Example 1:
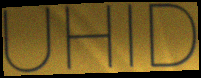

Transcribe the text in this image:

UHID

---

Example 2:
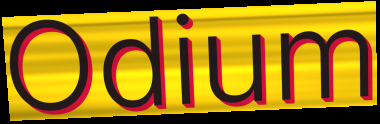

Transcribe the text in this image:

Odium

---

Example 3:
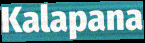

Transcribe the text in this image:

Kalapana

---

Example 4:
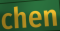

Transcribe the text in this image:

chen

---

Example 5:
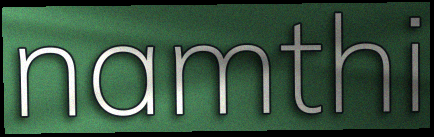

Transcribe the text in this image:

namthi